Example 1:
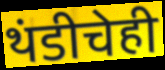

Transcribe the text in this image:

थंडीचेही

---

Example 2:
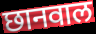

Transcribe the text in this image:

छानवाल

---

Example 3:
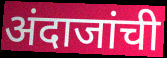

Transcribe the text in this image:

अंदाजांची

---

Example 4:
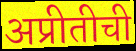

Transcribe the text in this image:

अप्रीतीची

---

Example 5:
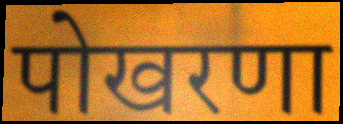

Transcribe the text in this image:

पोखरणा